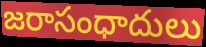
జరాసంధాదులు